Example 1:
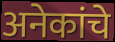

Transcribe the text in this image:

अनेकांचे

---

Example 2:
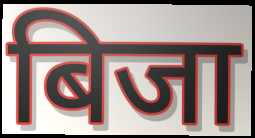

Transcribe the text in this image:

बिजा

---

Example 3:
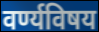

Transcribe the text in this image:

वर्ण्यविषय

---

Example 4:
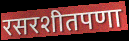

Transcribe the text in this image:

रसरशीतपणा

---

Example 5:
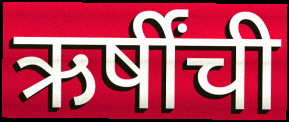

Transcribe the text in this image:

ऋर्षींची